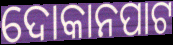
ଦୋକାନପାଟ